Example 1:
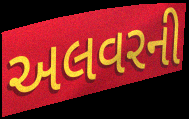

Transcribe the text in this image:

અલવરની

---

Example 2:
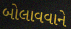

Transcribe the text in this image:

બોલાવવાને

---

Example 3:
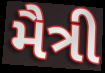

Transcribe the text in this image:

મૈત્રી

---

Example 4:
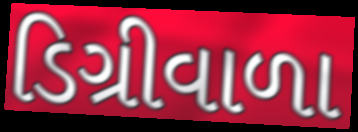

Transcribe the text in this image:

ડિગ્રીવાળા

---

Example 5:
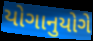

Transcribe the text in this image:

યોગાનુયોગે